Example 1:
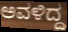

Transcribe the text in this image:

ಅವಳಿದ್ದ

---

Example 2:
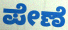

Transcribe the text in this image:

ಪೇಣೆ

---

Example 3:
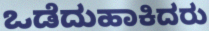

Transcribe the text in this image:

ಒಡೆದುಹಾಕಿದರು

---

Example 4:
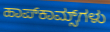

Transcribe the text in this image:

ಹಾಪ್‌ಕಾಮ್ಸ್‌ಗಳು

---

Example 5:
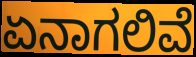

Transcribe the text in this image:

ಏನಾಗಲಿವೆ